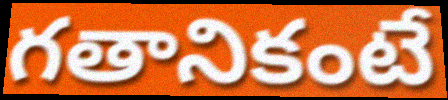
గతానికంటే